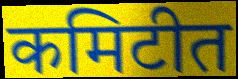
कमिटीत